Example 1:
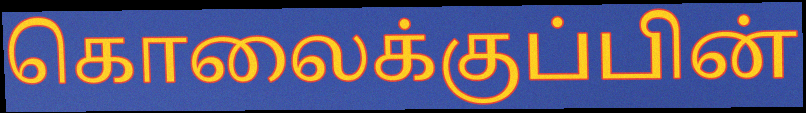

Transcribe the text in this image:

கொலைக்குப்பின்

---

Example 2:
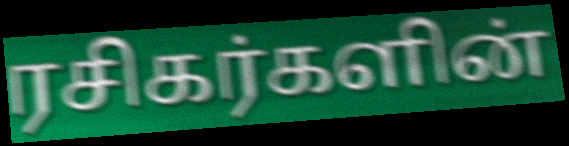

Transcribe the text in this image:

ரசிகர்களின்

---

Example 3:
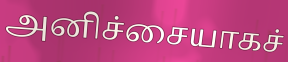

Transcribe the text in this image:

அனிச்சையாகச்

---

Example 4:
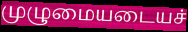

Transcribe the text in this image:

முழுமையடையச்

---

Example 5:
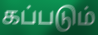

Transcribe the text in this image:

கப்படும்